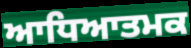
ਆਧਿਆਤਮਕ